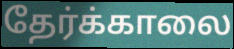
தேர்க்காலை